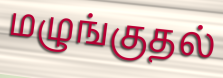
மழுங்குதல்